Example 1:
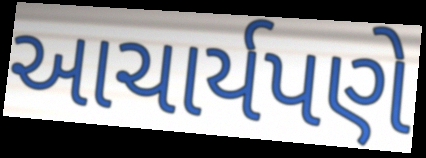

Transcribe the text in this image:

આચાર્યપણે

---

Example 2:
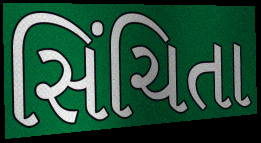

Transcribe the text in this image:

સિંચિતા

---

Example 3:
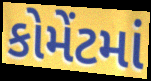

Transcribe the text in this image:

કોમેંટમાં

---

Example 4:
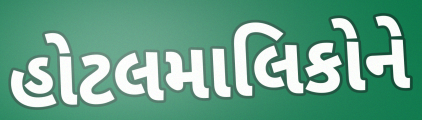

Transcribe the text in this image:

હોટલમાલિકોને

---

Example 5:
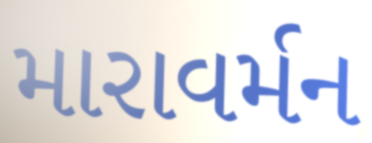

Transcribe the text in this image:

મારાવર્મન